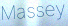
Massey